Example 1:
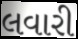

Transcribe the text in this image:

લવારી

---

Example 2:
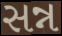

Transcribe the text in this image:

સન્ન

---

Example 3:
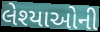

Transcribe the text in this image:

લેશ્યાઓની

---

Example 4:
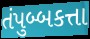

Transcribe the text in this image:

તંપુબ્બકત્તા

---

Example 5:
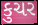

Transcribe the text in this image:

કુચર